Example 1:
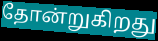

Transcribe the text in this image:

தோன்றுகிறது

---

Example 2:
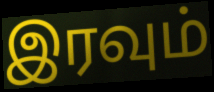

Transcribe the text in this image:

இரவும்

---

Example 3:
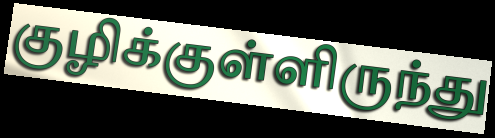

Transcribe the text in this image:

குழிக்குள்ளிருந்து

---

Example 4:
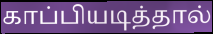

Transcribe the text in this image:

காப்பியடித்தால்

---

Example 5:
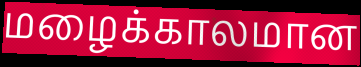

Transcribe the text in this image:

மழைக்காலமான